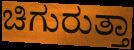
ಚಿಗುರುತ್ತಾ